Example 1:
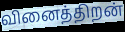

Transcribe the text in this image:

வினைத்திறன்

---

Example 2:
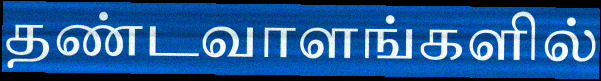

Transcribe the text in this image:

தண்டவாளங்களில்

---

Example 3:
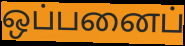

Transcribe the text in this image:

ஒப்பனைப்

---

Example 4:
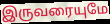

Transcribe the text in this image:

இருவரையுமே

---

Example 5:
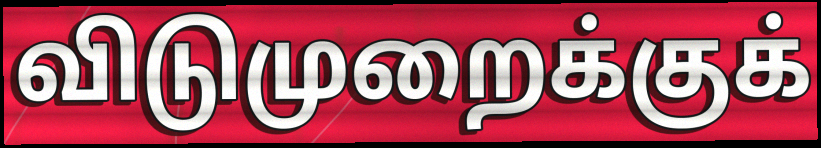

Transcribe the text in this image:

விடுமுறைக்குக்